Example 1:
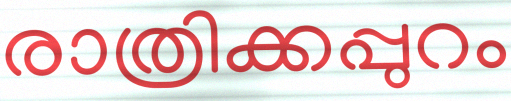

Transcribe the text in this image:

രാത്രിക്കപ്പുറം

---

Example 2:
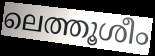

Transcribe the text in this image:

ലെത്തൂശീം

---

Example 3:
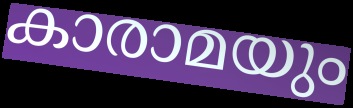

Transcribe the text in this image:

കാരാമയും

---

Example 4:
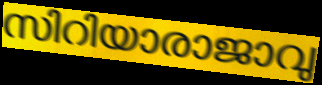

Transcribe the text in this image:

സിറിയാരാജാവു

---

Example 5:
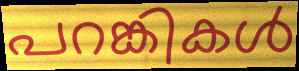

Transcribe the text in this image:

പറങ്കികൾ